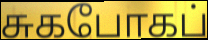
சுகபோகப்